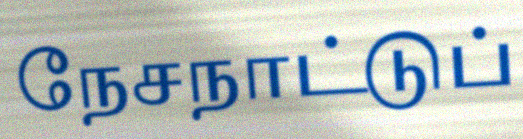
நேசநாட்டுப்